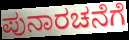
ಪುನಾರಚನೆಗೆ